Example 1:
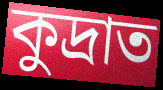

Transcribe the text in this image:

কুদ্রাত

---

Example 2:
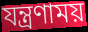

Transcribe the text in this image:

যন্ত্রণাময়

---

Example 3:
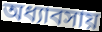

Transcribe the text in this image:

অধ্যাবসায়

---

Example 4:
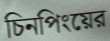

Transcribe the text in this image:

চিনপিংয়ের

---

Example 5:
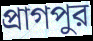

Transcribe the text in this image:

প্রাগপুর